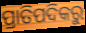
ପ୍ରାତିପଦିକରୁ